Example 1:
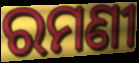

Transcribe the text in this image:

ରମଣୀ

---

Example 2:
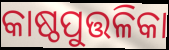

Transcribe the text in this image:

କାଷ୍ଠପୁତ୍ତଳିକା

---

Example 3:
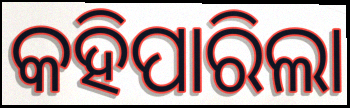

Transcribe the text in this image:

କହିପାରିଲା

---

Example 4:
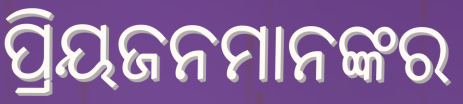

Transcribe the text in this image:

ପ୍ରିୟଜନମାନଙ୍କର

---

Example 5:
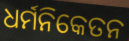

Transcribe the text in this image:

ଧର୍ମନିକେତନ